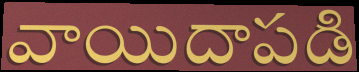
వాయిదాపడి